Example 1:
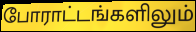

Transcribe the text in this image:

போராட்டங்களிலும்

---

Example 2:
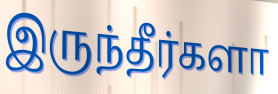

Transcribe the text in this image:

இருந்தீர்களா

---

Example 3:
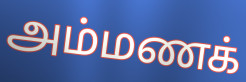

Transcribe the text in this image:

அம்மணக்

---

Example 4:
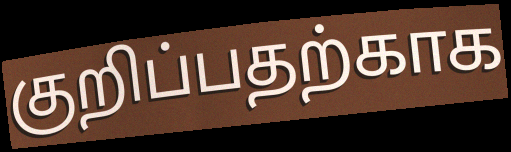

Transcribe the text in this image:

குறிப்பதற்காக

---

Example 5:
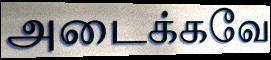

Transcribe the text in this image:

அடைக்கவே